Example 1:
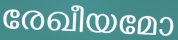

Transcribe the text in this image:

രേഖീയമോ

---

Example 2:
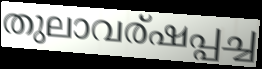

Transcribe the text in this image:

തുലാവര്ഷപ്പച്ച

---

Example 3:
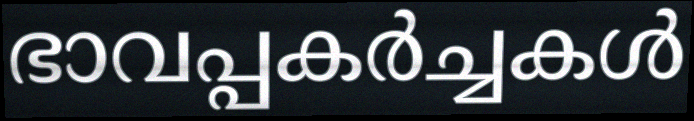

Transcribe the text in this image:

ഭാവപ്പകർച്ചകൾ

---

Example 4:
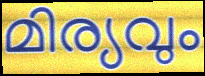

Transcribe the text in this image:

മിര്യവും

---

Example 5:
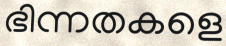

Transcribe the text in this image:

ഭിന്നതകളെ